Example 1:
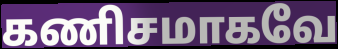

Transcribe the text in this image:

கணிசமாகவே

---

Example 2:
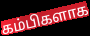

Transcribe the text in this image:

கம்பிகளாக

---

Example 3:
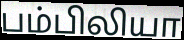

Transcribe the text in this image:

பம்பிலியா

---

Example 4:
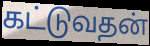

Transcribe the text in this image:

கட்டுவதன்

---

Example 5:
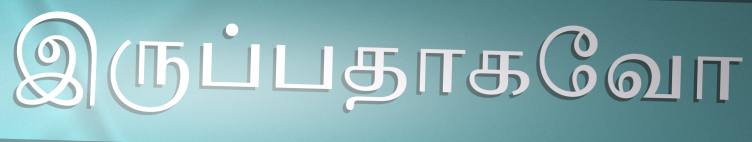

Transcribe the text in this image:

இருப்பதாகவோ